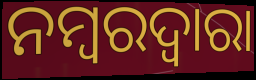
ନମ୍ବରଦ୍ୱାରା